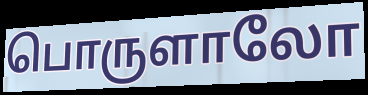
பொருளாலோ